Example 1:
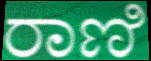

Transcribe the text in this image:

ರಾಣಿ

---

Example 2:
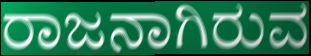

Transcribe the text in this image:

ರಾಜನಾಗಿರುವ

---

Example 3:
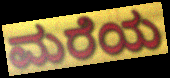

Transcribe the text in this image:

ಮರೆಯ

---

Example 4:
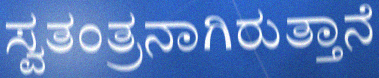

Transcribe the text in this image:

ಸ್ವತಂತ್ರನಾಗಿರುತ್ತಾನೆ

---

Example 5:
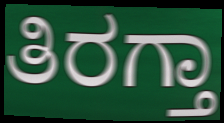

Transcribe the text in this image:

ತಿರಗ್ತಾ